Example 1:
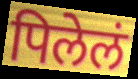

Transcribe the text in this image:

पिलेलं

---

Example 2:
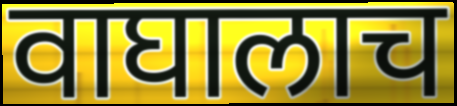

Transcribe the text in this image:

वाघालाच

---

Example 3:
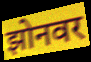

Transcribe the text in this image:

झोनवर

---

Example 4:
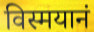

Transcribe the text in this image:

विस्मयानं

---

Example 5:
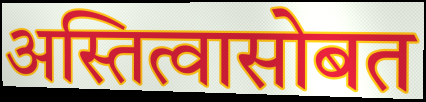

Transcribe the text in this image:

अस्तित्वासोबत